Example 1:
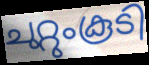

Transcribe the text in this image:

ചുറ്റുംകൂടി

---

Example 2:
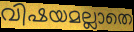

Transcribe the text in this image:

വിഷയമല്ലാതെ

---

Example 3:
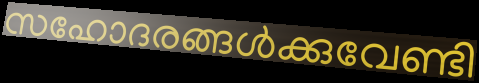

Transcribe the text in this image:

സഹോദരങ്ങൾക്കുവേണ്ടി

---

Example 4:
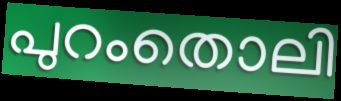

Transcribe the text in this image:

പുറംതൊലി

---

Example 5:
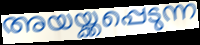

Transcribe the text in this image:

അയയ്ക്കപ്പെടുന്ന